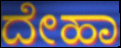
ದೇಹಾ